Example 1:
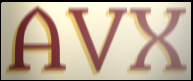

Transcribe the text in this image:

AVX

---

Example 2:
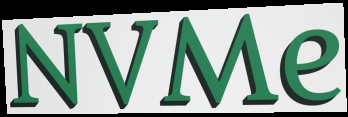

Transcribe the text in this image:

NVMe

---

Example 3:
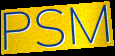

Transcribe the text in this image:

PSM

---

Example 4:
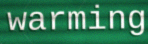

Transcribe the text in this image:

warming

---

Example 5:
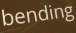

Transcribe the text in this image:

bending